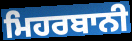
ਮਿਹਰਬਾਨੀ